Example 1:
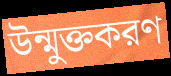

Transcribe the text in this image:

উন্মুক্তকরণ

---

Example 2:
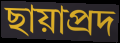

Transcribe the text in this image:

ছায়াপ্রদ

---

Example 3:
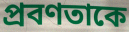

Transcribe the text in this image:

প্রবণতাকে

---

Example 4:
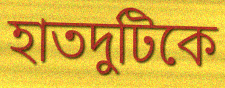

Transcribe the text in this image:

হাতদুটিকে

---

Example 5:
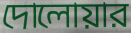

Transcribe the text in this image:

দোলোয়ার